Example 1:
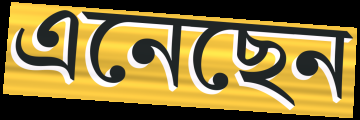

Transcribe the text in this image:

এনেছেন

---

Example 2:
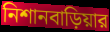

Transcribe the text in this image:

নিশানবাড়িয়ার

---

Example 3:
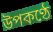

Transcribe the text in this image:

উপকণ্ঠে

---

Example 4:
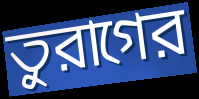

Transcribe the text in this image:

তুরাগের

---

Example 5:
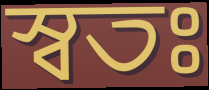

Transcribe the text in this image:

স্বতঃ